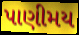
પાણીમય